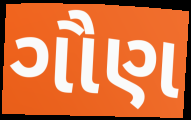
ગૌણ